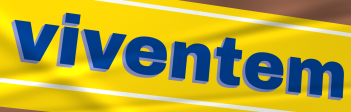
viventem